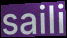
saili